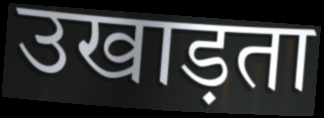
उखाड़ता